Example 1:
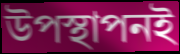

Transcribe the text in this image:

উপস্থাপনই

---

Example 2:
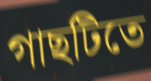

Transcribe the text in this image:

গাছটিতে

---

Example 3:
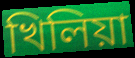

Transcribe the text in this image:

খিলিয়া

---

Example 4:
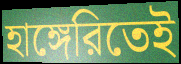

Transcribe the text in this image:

হাঙ্গেরিতেই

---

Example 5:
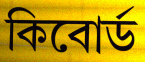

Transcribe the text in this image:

কিবোর্ড